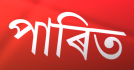
পাৰিত